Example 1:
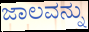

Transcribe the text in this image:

ಜಾಲವನ್ನು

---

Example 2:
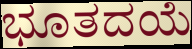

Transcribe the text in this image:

ಭೂತದಯೆ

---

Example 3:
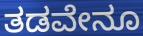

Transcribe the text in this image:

ತಡವೇನೂ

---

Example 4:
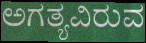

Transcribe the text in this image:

ಅಗತ್ಯವಿರುವ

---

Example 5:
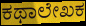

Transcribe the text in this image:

ಕಥಾಲೇಖಕ